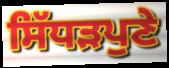
ਸਿੱਧੜਪੁਣੇ